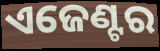
ଏଜେଣ୍ଟର